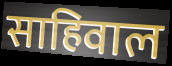
साहिवाल